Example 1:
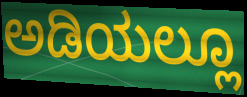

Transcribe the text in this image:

ಅಡಿಯಲ್ಲೂ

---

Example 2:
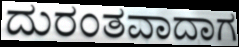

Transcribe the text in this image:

ದುರಂತವಾದಾಗ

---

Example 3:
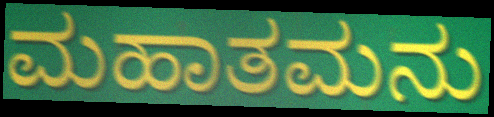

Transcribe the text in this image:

ಮಹಾತಮನು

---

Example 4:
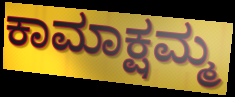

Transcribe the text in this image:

ಕಾಮಾಕ್ಷಮ್ಮ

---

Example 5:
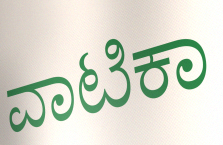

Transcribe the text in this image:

ವಾಟಿಕಾ